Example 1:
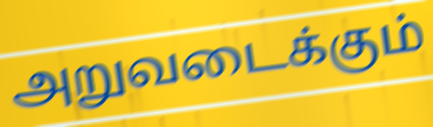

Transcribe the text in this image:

அறுவடைக்கும்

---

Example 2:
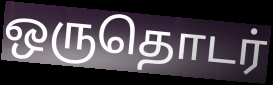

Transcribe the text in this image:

ஒருதொடர்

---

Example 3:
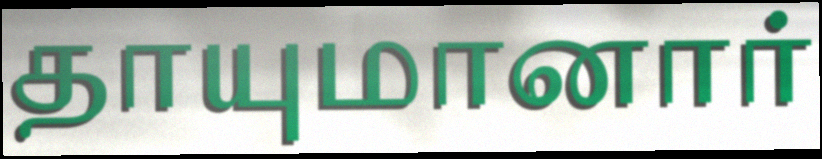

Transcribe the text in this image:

தாயுமானார்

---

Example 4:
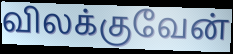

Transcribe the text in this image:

விலக்குவேன்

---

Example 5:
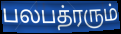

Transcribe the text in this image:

பலபத்ரரும்